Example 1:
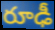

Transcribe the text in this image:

రూఢీ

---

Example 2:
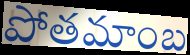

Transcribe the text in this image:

పోతమాంబ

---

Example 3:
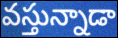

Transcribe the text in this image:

వస్తున్నాడా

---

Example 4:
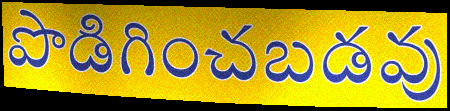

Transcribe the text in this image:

పొడిగించబడవు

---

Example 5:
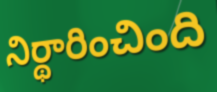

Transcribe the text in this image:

నిర్థారించింది